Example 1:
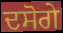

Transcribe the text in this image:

ਦਸੋਗੇ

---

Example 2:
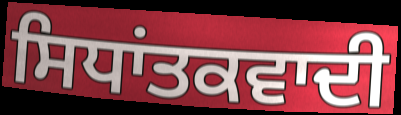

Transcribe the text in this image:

ਸਿਧਾਂਤਕਵਾਦੀ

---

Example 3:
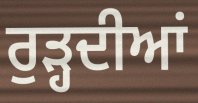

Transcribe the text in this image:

ਰੁੜ੍ਹਦੀਆਂ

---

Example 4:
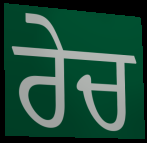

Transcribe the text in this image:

ਰੇਚ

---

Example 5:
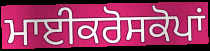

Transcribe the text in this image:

ਮਾਈਕਰੋਸਕੋਪਾਂ